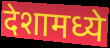
देशामध्ये